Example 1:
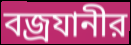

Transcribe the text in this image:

বজ্রযানীর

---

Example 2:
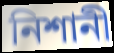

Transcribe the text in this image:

নিশানী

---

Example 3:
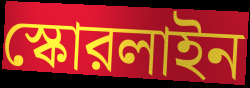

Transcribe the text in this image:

স্কোরলাইন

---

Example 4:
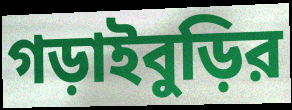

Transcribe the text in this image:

গড়াইবুড়ির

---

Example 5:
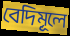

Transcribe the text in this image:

বেদিমূলে